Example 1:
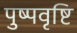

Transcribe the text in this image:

पुष्पवृष्टि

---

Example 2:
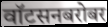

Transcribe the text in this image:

वॉटसनबरोबर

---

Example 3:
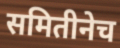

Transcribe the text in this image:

समितीनेच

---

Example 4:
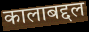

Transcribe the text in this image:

कालाबद्दल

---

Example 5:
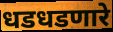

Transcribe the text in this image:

धडधडणारे